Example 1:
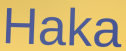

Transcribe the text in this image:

Haka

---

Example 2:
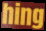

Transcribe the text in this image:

hing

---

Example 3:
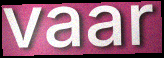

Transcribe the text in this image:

vaar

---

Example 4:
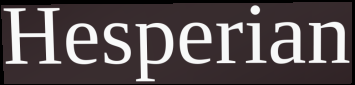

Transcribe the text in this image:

Hesperian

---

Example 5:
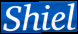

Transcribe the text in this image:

Shiel